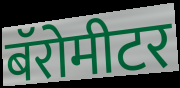
बॅरोमीटर